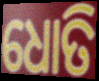
ଧୋତି